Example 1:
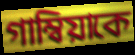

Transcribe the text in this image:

গাম্বিয়াকে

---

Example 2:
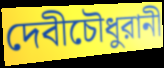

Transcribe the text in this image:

দেবীচৌধুরানী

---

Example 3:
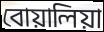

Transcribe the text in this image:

বোয়ালিয়া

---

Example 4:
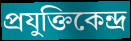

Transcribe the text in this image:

প্রযুক্তিকেন্দ্র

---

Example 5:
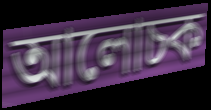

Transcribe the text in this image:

আলোচক